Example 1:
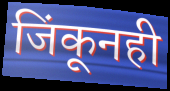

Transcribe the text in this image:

जिंकूनही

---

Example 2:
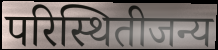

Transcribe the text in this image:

परिस्थितीजन्य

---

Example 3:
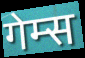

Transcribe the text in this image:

गेम्स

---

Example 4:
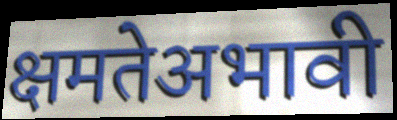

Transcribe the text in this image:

क्षमतेअभावी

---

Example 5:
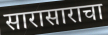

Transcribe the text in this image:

सारासाराचा